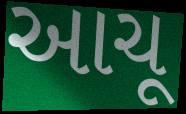
આચૂ